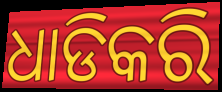
ଧାଡିକରି